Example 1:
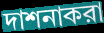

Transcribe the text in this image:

দাশনাকরা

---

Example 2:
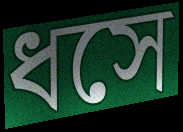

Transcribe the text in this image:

ধসে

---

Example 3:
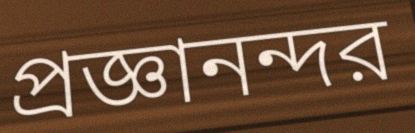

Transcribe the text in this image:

প্রজ্ঞানন্দর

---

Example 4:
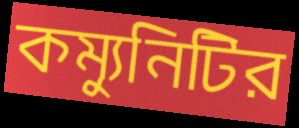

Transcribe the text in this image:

কম্যুনিটির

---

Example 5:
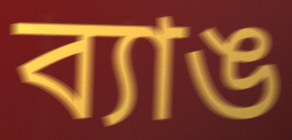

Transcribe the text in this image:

ব্যাঙ